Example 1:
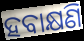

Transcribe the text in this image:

ହବାକ୍ଷଣି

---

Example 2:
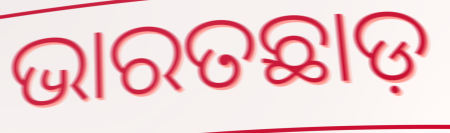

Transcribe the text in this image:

ଭାରତଛାଡ଼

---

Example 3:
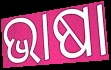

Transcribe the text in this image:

ଭାଷା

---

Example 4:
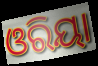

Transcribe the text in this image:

ଓରିୟା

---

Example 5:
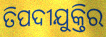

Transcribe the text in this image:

ତିପଦୀଯୁକ୍ତିର